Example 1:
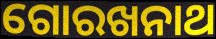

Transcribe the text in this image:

ଗୋରଖନାଥ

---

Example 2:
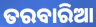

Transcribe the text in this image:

ତରବାରିଆ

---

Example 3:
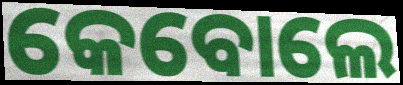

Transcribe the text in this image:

କେବୋଲେ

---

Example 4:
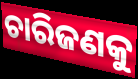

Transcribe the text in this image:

ଚାରିଜଣକୁ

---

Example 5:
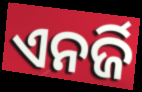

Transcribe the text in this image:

ଏନର୍ଜି